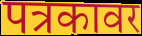
पत्रकावर